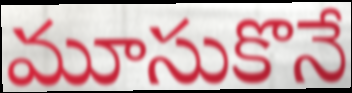
మూసుకొనే